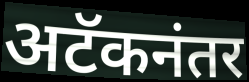
अटॅकनंतर